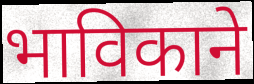
भाविकाने